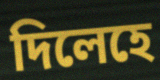
দিলেহে